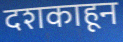
दशकाहून